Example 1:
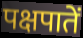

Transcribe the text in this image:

पक्षपातें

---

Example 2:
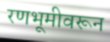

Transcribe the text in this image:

रणभूमीवरून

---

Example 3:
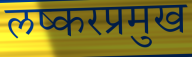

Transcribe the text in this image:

लष्करप्रमुख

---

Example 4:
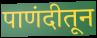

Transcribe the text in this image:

पाणंदीतून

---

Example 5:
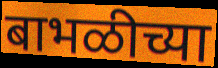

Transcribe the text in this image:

बाभळीच्या